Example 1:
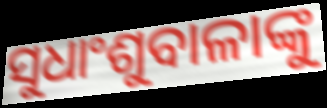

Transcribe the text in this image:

ସୁଧାଂଶୁବାଳାଙ୍କୁ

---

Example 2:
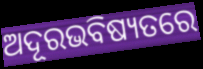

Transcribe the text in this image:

ଅଦୂରଭବିଷ୍ୟତରେ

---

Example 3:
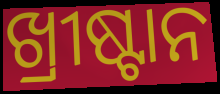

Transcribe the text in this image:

ଖ୍ରୀଷ୍ଟାନ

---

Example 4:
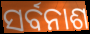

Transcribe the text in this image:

ସର୍ବନାଶ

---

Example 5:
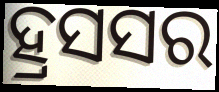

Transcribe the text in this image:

ହ୍ରସସର